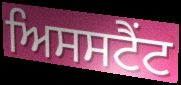
ਅਿਸਸਟੈਂਟ